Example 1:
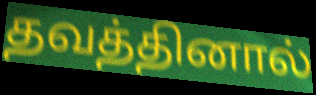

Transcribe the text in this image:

தவத்தினால்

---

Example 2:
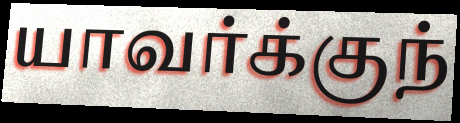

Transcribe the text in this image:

யாவர்க்குந்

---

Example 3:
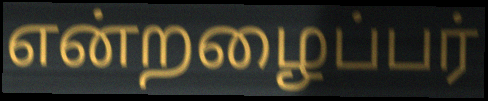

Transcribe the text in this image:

என்றழைப்பர்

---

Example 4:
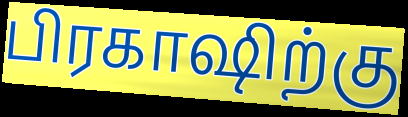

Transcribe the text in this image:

பிரகாஷிற்கு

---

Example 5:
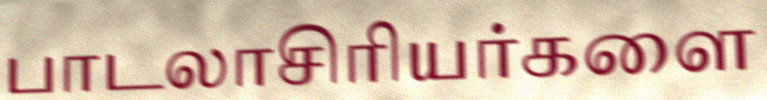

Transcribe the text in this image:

பாடலாசிரியர்களை